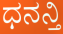
ಧನನ್ತಿ